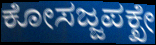
ಕೋಸಜ್ಜಪಕ್ಖೇ